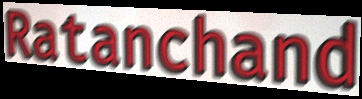
Ratanchand